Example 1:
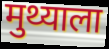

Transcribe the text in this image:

मुथ्याला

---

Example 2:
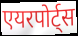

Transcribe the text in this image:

एयरपोर्ट्स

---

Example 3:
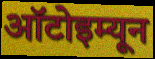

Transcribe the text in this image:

ऑटोइम्‍यून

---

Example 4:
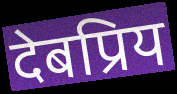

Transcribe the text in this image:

देबप्रिय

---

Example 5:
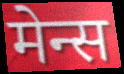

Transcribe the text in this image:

मेन्स